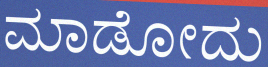
ಮಾಡೋದು